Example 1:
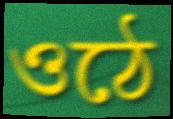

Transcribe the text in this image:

ওঠে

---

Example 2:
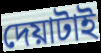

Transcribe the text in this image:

দেয়াটাই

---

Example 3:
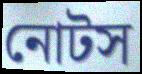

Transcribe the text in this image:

নোটস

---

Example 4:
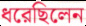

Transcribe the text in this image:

ধরেছিলেন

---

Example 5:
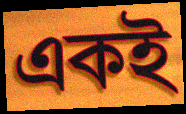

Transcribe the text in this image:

একই